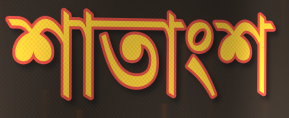
শাতাংশ